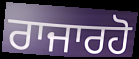
ਰਾਜਾਰਹੋ